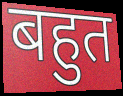
बहुत